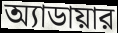
অ্যাডায়ার